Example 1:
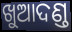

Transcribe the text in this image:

ଖୁଆଦଣ୍ଡ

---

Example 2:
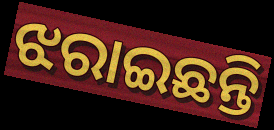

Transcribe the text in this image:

ଝରାଇଛନ୍ତି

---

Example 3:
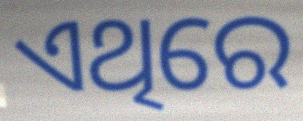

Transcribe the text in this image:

ଏଥିରେ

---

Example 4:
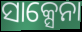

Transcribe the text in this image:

ସାକ୍ସେନା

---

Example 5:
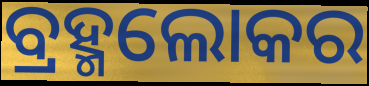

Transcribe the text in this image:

ବ୍ରହ୍ମଲୋକର